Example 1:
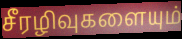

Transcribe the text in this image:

சீரழிவுகளையும்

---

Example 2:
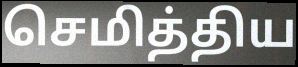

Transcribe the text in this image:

செமித்திய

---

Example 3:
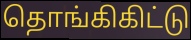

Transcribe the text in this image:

தொங்கிகிட்டு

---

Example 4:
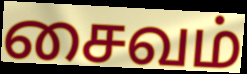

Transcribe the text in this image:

சைவம்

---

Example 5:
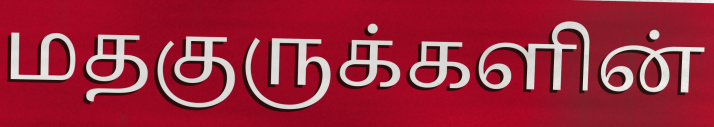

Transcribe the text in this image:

மதகுருக்களின்